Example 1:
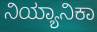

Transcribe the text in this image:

ನಿಯ್ಯಾನಿಕಾ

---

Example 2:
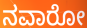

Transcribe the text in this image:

ನವಾರೋ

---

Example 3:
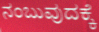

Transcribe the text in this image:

ನಂಬುವುದಕ್ಕೆ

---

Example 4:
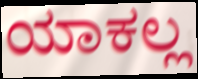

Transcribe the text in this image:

ಯಾಕಲ್ಲ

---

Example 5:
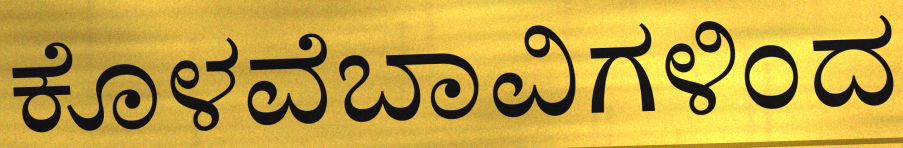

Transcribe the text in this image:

ಕೊಳವೆಬಾವಿಗಳಿಂದ